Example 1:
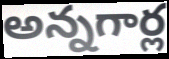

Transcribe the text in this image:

అన్నగార్ల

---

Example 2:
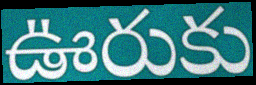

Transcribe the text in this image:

ఊరుకు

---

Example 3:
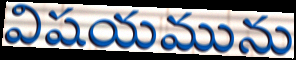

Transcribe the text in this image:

విషయమును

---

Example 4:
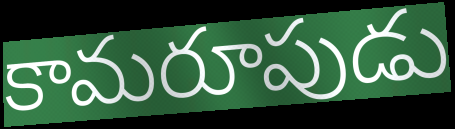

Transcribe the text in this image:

కామరూపుడు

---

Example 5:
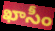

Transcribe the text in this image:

ఖాసీం